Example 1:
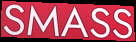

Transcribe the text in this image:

SMASS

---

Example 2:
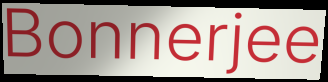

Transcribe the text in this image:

Bonnerjee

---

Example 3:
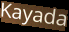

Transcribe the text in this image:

Kayada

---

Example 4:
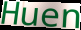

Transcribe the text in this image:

Huen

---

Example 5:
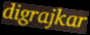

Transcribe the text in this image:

digrajkar